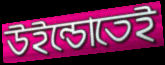
উইন্ডোতেই